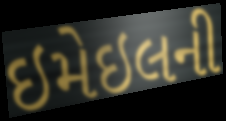
ઇમેઇલની